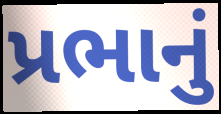
પ્રભાનું